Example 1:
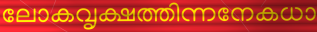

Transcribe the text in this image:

ലോകവൃക്ഷത്തിന്നനേകധാ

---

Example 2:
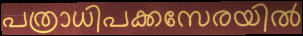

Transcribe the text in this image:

പത്രാധിപക്കസേരയിൽ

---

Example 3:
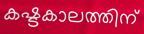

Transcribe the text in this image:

കഷ്ടകാലത്തിന്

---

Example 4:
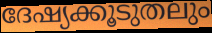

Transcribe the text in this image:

ദേഷ്യക്കൂടുതലും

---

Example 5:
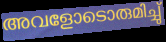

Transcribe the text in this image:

അവളോടൊരുമിച്ചു്